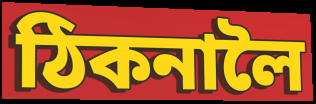
ঠিকনালৈ